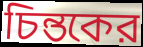
চিন্তকের